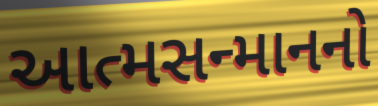
આત્મસન્માનનો